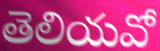
తెలియవో